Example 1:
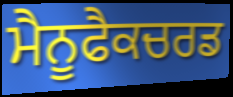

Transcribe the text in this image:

ਮੈਨੂਫੈਕਚਰਡ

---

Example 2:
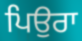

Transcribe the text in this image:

ਪਿਉਰਾ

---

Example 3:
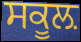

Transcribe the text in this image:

ਸਕੂਲ਼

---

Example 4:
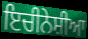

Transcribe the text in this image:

ਇਚੀਨੇਸ਼ੀਆ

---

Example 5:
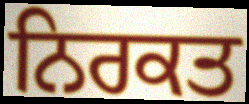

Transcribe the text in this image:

ਨਿਰਕਤ